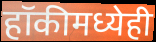
हॉकीमध्येही